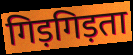
गिड़गिड़ता